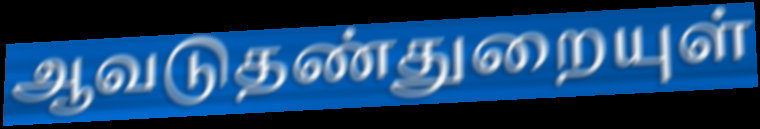
ஆவடுதண்துறையுள்